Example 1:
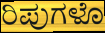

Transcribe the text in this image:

ರಿಪುಗಳೊ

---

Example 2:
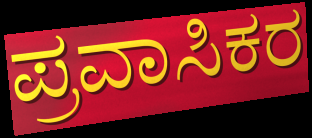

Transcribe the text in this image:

ಪ್ರವಾಸಿಕರ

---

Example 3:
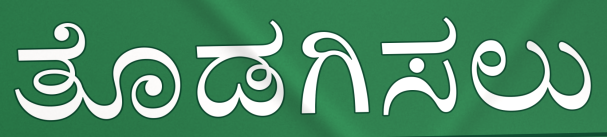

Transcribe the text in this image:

ತೊಡಗಿಸಲು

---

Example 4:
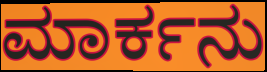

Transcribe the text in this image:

ಮಾರ್ಕನು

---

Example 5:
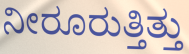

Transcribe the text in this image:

ನೀರೂರುತ್ತಿತ್ತು